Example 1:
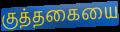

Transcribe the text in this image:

குத்தகையை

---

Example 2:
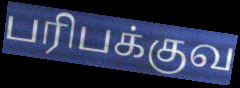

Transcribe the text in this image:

பரிபக்குவ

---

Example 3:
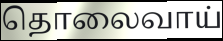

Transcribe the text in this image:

தொலைவாய்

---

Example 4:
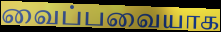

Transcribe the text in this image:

வைப்பவையாக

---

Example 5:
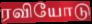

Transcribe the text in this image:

ரவியோடு